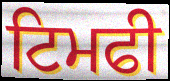
ਟਿਮਫੀ